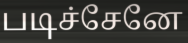
படிச்சேனே